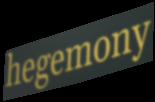
hegemony